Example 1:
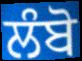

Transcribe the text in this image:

ਲੰਬੋ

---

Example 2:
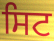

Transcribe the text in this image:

ਸਿਟ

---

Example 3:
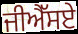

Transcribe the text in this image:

ਜੀਐੱਸਏ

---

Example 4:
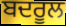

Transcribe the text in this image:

ਬਦਰੂਲ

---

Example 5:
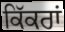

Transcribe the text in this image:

ਕਿੱਕਰਾਂ